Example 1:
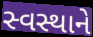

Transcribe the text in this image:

સ્વસ્થાને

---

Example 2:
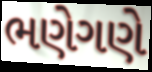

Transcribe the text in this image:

ભણેગણે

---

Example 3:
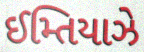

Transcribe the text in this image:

ઈમ્તિયાઝે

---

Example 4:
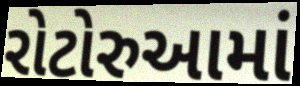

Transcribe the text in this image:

રોટોરુઆમાં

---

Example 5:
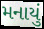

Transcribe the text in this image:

મનાયું